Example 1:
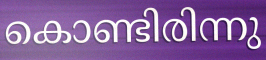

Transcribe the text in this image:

കൊണ്ടിരിന്നു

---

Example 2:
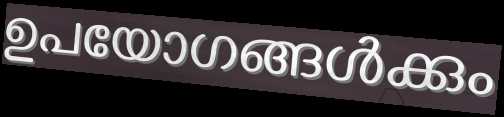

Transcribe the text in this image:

ഉപയോഗങ്ങൾക്കും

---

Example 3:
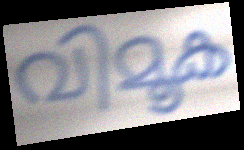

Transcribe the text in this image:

വിമൂക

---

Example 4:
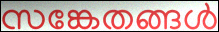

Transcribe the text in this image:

സങ്കേതങ്ങൾ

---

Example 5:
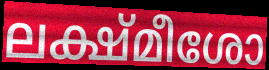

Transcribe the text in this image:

ലക്ഷ്മീശോ